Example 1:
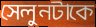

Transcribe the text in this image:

সেলুনটাকে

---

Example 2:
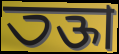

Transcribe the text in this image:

তক্তা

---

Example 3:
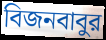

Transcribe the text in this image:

বিজনবাবুর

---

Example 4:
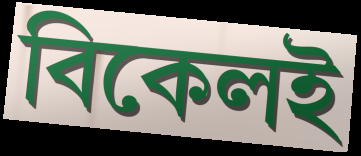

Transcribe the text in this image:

বিকেলই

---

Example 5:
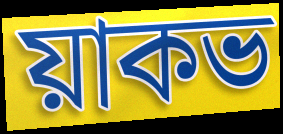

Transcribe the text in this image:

য়াকভ